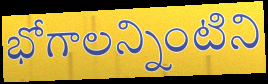
భోగాలన్నింటిని